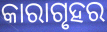
କାରାଗୃହର